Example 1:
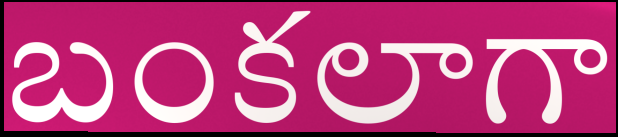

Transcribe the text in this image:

బంకలాగా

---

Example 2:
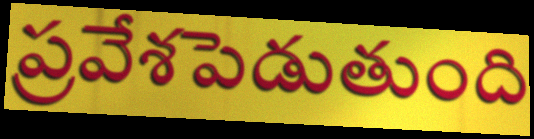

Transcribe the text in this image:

ప్రవేశపెడుతుంది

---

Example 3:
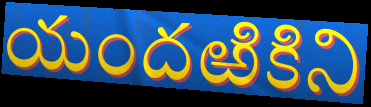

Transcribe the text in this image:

యందఱికిని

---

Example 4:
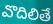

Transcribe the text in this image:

వొదిలితే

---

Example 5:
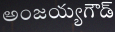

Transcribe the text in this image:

అంజయ్యగౌడ్